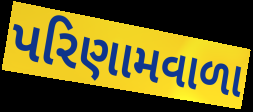
પરિણામવાળા